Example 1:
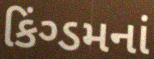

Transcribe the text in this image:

કિંગ્ડમનાં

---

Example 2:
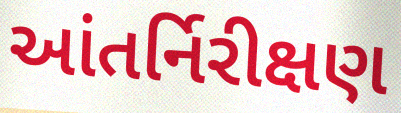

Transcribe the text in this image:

આંતર્નિરીક્ષણ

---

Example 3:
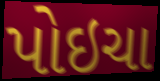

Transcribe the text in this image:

પોઇચા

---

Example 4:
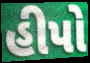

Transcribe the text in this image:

હીપો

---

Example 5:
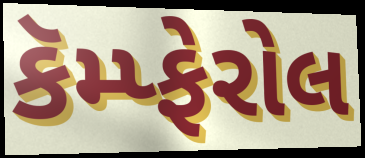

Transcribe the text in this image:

કૅમ્પ્ફેરોલ